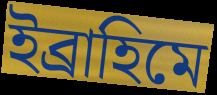
ইব্ৰাহিমে